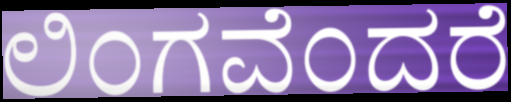
ಲಿಂಗವೆಂದರೆ